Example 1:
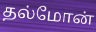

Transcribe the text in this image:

தல்மோன்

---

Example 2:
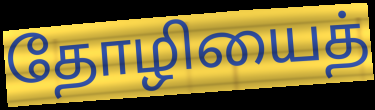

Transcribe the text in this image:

தோழியைத்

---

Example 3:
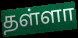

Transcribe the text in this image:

தள்ளா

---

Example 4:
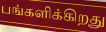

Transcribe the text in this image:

பங்களிக்கிறது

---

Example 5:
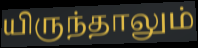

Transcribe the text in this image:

யிருந்தாலும்